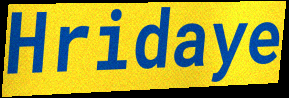
Hridaye